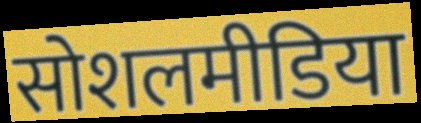
सोशलमीडिया